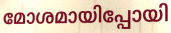
മോശമായിപ്പോയി